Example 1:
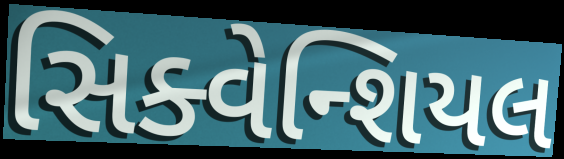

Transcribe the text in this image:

સિક્વેન્શિયલ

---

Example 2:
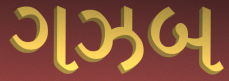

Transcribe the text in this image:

ગઝબ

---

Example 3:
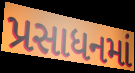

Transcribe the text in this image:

પ્રસાધનમાં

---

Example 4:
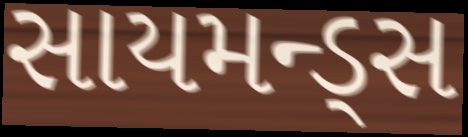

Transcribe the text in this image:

સાયમન્ડ્સ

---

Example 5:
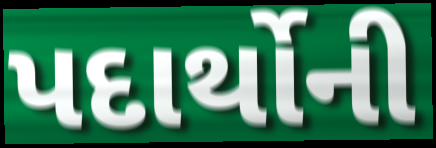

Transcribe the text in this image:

પદાર્થોની